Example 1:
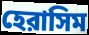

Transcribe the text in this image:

হেরাসিম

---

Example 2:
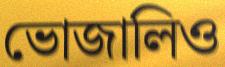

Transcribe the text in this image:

ভোজালিও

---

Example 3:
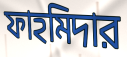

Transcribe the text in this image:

ফাহমিদার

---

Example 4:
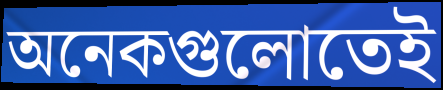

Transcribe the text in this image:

অনেকগুলোতেই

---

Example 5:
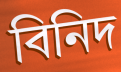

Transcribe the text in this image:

বিনিদ